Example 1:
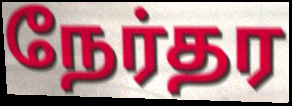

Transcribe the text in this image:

நேர்தர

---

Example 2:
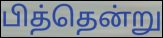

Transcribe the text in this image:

பித்தென்று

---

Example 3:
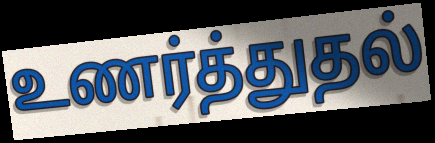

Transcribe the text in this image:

உணர்த்துதல்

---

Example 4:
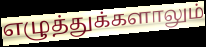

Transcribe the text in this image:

எழுத்துக்களாலும்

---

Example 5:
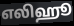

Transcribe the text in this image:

எலிஹூ